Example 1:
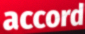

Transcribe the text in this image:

accord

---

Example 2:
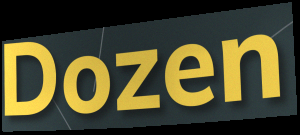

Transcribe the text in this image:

Dozen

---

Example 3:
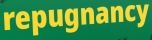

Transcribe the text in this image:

repugnancy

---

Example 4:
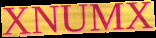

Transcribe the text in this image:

XNUMX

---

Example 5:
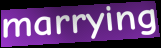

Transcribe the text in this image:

marrying